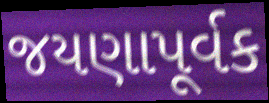
જયણાપૂર્વક